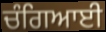
ਚੰਗਿਆਈ